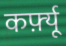
कर्फ़्यू